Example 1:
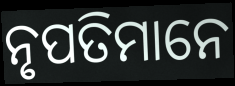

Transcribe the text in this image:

ନୃପତିମାନେ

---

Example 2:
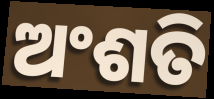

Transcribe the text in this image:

ଅଂଶତି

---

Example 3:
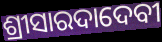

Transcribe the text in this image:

ଶ୍ରୀସାରଦାଦେବୀ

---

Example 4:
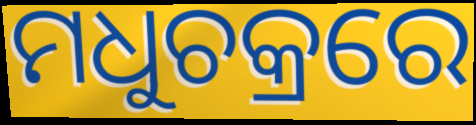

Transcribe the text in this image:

ମଧୁଚକ୍ରରେ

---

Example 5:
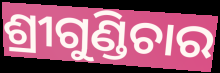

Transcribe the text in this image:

ଶ୍ରୀଗୁଣ୍ଡିଚାର